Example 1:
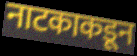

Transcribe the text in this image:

नाटकाकडून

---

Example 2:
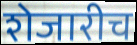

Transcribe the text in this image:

शेजारीच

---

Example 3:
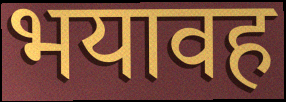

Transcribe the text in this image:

भयावह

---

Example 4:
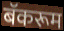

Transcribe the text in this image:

बॅकरूम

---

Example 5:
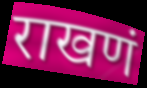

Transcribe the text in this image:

राखणं